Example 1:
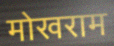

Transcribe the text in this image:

मोखराम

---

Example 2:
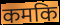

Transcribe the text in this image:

कमकि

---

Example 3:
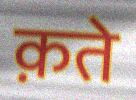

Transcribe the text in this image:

क़ते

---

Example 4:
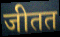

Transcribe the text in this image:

जीतत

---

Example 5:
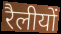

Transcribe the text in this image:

रैलीयों